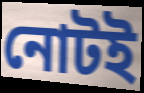
নোটই